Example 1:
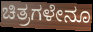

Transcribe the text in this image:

ಚಿತ್ರಗಳೇನೂ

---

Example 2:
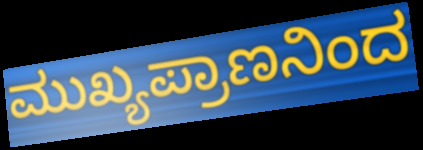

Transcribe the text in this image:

ಮುಖ್ಯಪ್ರಾಣನಿಂದ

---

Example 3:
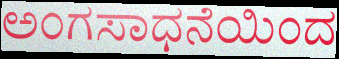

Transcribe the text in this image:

ಅಂಗಸಾಧನೆಯಿಂದ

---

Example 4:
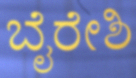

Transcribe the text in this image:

ಬೈರೇಶಿ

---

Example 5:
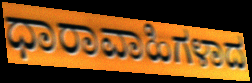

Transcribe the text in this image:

ಧಾರಾವಾಹಿಗಳಾದ